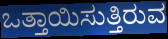
ಒತ್ತಾಯಿಸುತ್ತಿರುವ